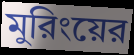
মুরিংয়ের